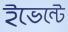
ইভেন্টে